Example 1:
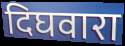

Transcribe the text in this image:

दिघवारा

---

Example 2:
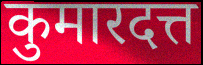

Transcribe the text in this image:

कुमारदत्त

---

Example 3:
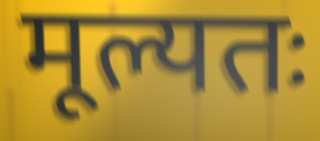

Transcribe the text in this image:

मूल्यतः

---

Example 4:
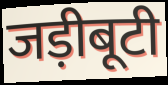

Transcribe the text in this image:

जड़ीबूटी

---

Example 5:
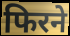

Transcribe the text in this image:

फिरने